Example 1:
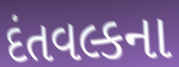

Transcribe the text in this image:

દંતવલ્કના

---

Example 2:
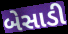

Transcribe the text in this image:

બેસાડી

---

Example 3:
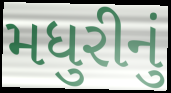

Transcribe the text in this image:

મધુરીનું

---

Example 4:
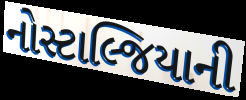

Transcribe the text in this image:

નોસ્ટાલ્જિયાની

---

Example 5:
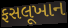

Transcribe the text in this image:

ફસલૂખાન